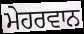
ਮੇਹਰਵਾਨ